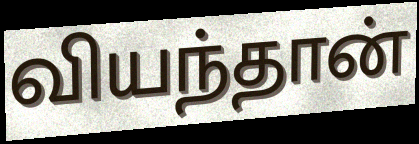
வியந்தான்